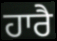
ਹਾਰੈ